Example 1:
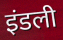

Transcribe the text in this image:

इंडली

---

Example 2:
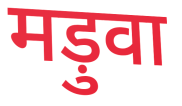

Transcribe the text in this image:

मड़ुवा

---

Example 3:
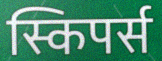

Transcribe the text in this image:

स्किपर्स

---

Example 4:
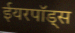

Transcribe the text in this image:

ईयरपॉड्स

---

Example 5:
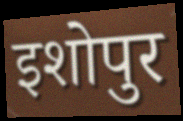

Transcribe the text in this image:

इशोपुर